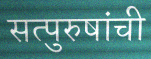
सत्पुरुषांची